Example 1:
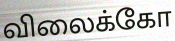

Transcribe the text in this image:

விலைக்கோ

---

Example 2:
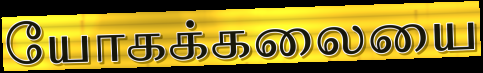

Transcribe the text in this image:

யோகக்கலையை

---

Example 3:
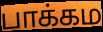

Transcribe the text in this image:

பாக்கம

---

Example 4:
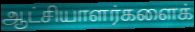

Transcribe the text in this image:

ஆட்சியாளர்களைக்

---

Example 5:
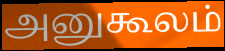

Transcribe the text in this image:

அனுகூலம்